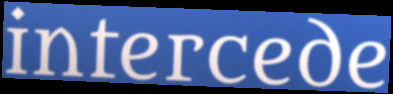
intercede